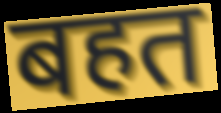
बहत